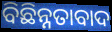
ବିଛିନ୍ନତାବାଦ